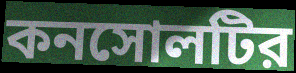
কনসোলটির